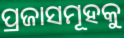
ପ୍ରଜାସମୂହକୁ